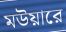
মউয়ারে